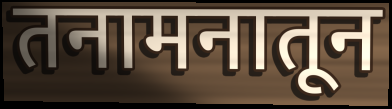
तनामनातून